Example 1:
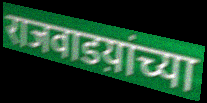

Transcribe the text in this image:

राजवाडय़ांच्या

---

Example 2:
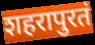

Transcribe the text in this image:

शहरापुरतं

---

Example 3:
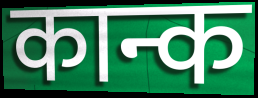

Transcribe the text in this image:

कान्क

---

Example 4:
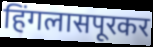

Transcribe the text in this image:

हिंगलासपूरकर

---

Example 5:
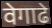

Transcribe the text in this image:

वेगाढे